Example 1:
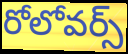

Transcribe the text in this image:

రోలోవర్స్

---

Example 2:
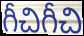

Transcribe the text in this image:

గీచిగీచి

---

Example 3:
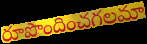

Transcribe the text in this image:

రూపొందించగలమా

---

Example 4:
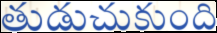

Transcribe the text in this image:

తుడుచుకుంది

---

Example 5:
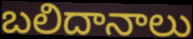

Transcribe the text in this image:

బలిదానాలు